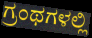
ಗ್ರಂಥಗಳಲ್ಲಿ